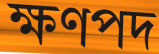
ক্ষণপদ